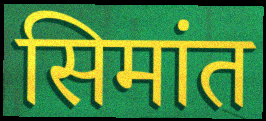
सिमांत